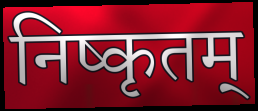
निष्कृतम्